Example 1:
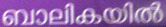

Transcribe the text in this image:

ബാലികയിൽ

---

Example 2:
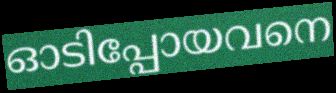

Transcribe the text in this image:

ഓടിപ്പോയവനെ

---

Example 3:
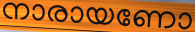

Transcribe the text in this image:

നാരായണോ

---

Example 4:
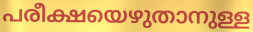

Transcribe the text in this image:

പരീക്ഷയെഴുതാനുള്ള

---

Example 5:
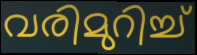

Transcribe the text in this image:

വരിമുറിച്ച്